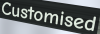
Customised